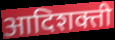
आदिशक्ती